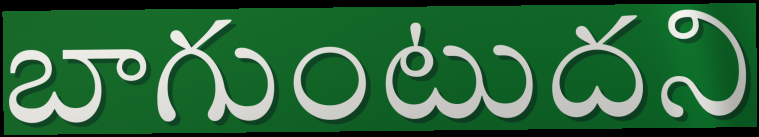
బాగుంటుదని